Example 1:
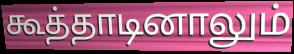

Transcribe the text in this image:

கூத்தாடினாலும்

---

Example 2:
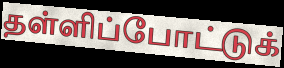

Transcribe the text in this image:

தள்ளிப்போட்டுக்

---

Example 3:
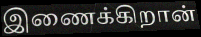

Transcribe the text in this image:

இணைக்கிறான்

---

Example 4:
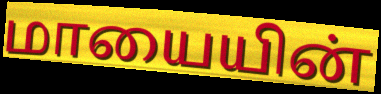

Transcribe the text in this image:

மாயையின்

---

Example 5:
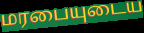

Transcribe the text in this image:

மரபையுடைய